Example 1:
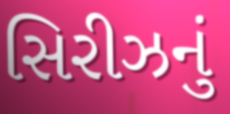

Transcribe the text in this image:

સિરીઝનું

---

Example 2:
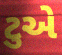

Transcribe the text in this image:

ટુએ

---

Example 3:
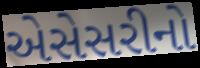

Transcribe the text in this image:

એસેસરીનો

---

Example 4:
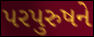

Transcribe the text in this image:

પરપુરુષને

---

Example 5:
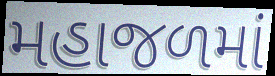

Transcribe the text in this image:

મહાજળમાં